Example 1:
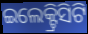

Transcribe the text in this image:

ଇଲେକ୍ଟ୍ରିସିଟି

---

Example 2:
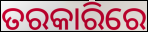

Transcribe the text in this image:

ତରକାରିରେ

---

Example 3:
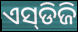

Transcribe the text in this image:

ଏସ୍‌ଡିଜି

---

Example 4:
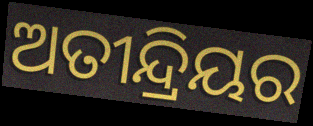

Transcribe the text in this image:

ଅତୀନ୍ଦ୍ରିୟର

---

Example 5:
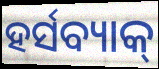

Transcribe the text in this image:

ହର୍ସବ୍ୟାକ୍